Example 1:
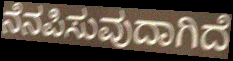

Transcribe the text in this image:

ನೆನಪಿಸುವುದಾಗಿದೆ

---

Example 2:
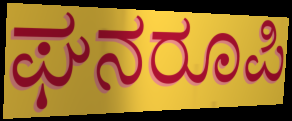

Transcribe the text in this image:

ಘನರೂಪಿ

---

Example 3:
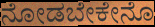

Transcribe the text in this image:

ನೋಡಬೇಕೇನೊ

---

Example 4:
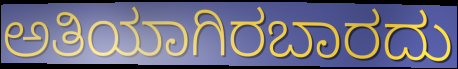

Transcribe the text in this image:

ಅತಿಯಾಗಿರಬಾರದು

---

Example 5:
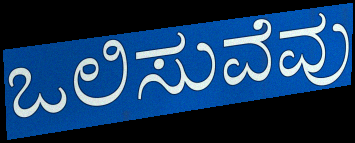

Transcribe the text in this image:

ಒಲಿಸುವೆವು